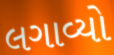
લગાવ્યો